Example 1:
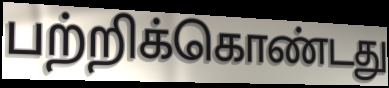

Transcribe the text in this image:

பற்றிக்கொண்டது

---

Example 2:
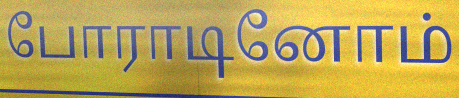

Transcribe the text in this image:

போராடினோம்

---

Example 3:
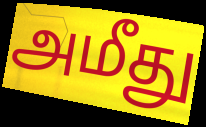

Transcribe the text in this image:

அமீது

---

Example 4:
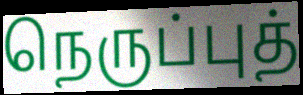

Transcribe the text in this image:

நெருப்புத்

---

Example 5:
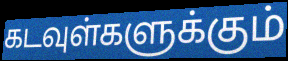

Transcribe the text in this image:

கடவுள்களுக்கும்